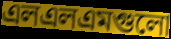
এলএলএমগুলো